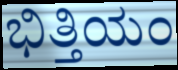
ಭಿತ್ತಿಯಂ